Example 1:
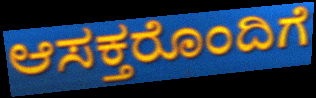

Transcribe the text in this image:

ಆಸಕ್ತರೊಂದಿಗೆ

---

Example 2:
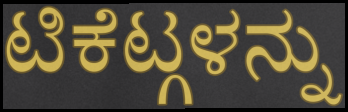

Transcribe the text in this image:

ಟಿಕೆಟ್ಗಳನ್ನು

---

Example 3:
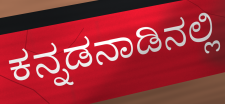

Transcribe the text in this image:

ಕನ್ನಡನಾಡಿನಲ್ಲಿ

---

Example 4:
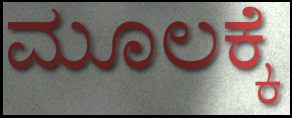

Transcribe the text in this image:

ಮೂಲಕ್ಕೆ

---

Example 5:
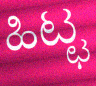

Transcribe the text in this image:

ಹಿಟ್ಟ